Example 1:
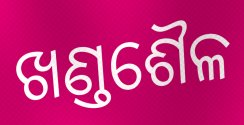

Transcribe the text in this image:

ଖଣ୍ଡଶୈଳ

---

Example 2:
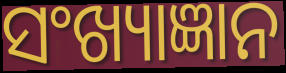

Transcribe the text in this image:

ସଂଖ୍ୟାଜ୍ଞାନ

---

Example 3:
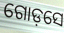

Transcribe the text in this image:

ଗୋଡ଼ସେ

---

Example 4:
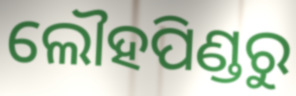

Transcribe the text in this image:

ଲୌହପିଣ୍ଡରୁ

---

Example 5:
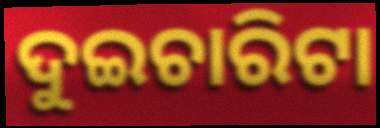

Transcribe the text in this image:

ଦୁଇଚାରିଟା